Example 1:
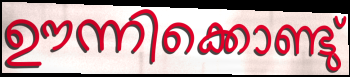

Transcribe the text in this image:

ഊന്നിക്കൊണ്ടു്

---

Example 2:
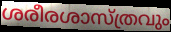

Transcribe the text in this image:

ശരീരശാസ്ത്രവും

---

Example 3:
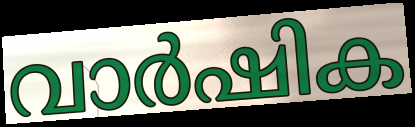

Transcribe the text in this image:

വാർഷിക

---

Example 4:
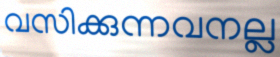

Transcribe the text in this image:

വസിക്കുന്നവനല്ല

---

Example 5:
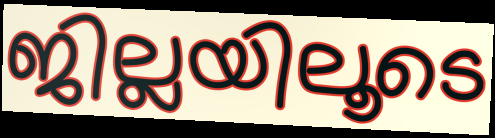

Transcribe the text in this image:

ജില്ലയിലൂടെ